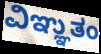
ವಿಞ್ಞುತಂ